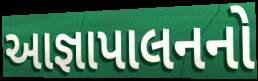
આજ્ઞાપાલનનો